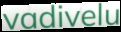
vadivelu